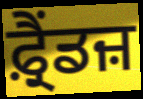
ਫ਼੍ਰੈਂਡਜ਼